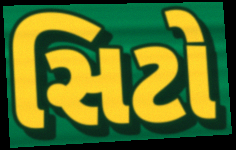
સિટો